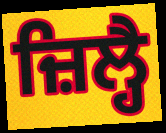
ਜ਼ਿਲ੍ਹੈ